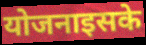
योजनाइसके